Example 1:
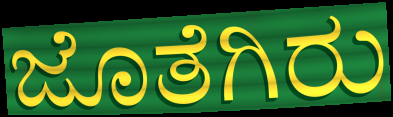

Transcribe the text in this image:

ಜೊತೆಗಿರು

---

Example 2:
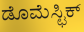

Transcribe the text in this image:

ಡೊಮೆಸ್ಟಿಕ್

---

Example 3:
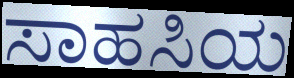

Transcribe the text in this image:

ಸಾಹಸಿಯ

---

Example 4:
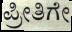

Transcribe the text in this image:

ಪ್ರೀತಿಗೇ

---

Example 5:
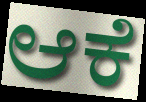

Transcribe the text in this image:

ಆಕೆ